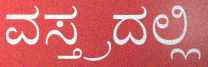
ವಸ್ತ್ರದಲ್ಲಿ